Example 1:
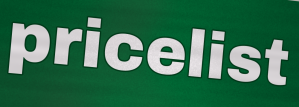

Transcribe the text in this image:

pricelist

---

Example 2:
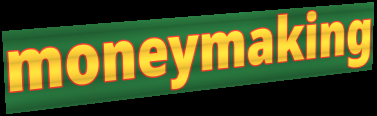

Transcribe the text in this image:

moneymaking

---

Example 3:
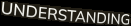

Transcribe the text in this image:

UNDERSTANDING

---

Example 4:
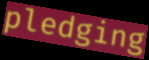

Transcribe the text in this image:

pledging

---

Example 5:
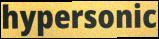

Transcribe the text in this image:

hypersonic